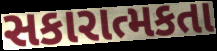
સકારાત્મકતા